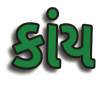
કાંય